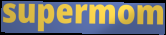
supermom